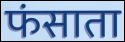
फंसाता